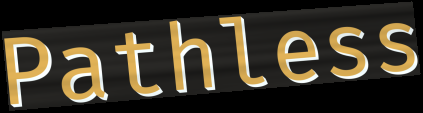
Pathless